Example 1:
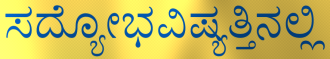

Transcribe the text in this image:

ಸದ್ಯೋಭವಿಷ್ಯತ್ತಿನಲ್ಲಿ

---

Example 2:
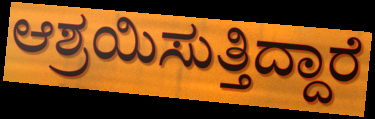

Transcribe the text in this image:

ಆಶ್ರಯಿಸುತ್ತಿದ್ದಾರೆ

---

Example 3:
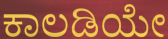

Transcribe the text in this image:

ಕಾಲಡಿಯೇ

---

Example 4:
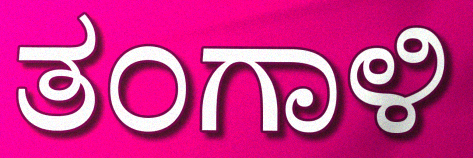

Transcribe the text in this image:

ತಂಗಾಳಿ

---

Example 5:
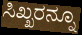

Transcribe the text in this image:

ಸಿಖ್ಖರನ್ನೂ